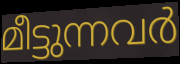
മീട്ടുന്നവർ